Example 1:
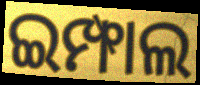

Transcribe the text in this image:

ଇମ୍ଫାଲ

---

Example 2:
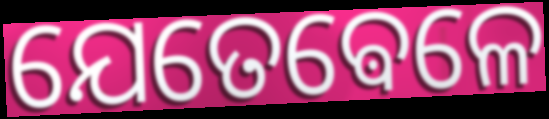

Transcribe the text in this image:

ଯେତେଵେଳେ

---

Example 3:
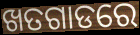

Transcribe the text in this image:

ଖତଗାଡରେ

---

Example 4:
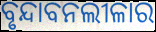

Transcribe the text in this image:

ବୃନ୍ଦାବନଲୀଳାର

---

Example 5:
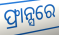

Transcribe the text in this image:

ଫ୍ରାନ୍ସରେ